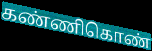
கண்ணிகொண்